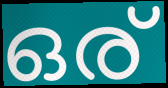
ഒര്